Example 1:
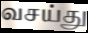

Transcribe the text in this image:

வசய்து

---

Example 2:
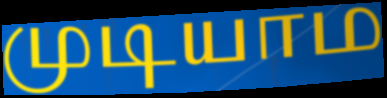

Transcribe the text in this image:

முடியாம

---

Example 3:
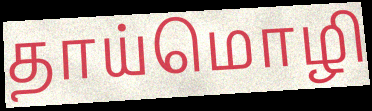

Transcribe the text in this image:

தாய்மொழி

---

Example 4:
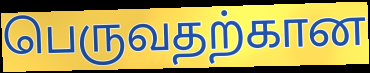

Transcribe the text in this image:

பெருவதற்கான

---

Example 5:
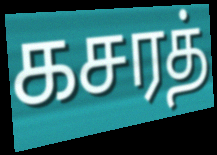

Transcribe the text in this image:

கசரத்